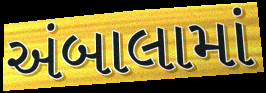
અંબાલામાં